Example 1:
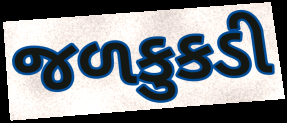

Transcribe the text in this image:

જળકુકડી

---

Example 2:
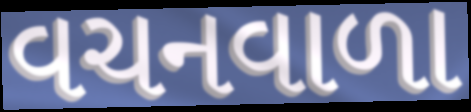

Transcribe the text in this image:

વચનવાળા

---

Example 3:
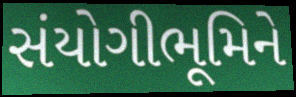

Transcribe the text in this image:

સંયોગીભૂમિને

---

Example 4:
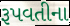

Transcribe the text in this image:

રૂપવતીના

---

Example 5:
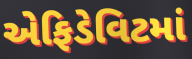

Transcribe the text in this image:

એફિડેવિટમાં